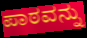
ಪಾಠವನ್ನು